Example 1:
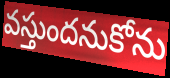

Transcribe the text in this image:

వస్తుందనుకోను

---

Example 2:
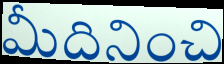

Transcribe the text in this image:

మీదినించి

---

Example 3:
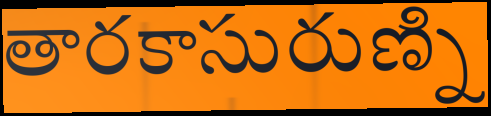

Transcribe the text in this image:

తారకాసురుణ్ని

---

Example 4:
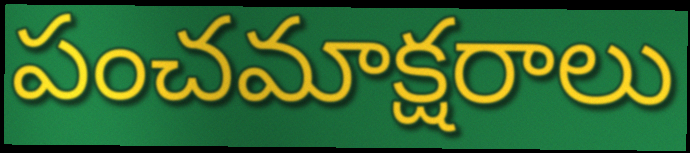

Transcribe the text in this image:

పంచమాక్షరాలు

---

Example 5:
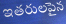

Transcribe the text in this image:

ఇతరులపైన